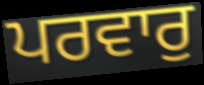
ਪਰਵਾਰੁ